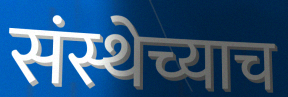
संस्थेच्याच